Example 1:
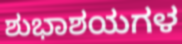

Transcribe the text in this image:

ಶುಭಾಶಯಗಳ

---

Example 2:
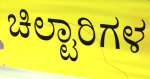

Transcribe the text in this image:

ಚಿಲ್ಟಾರಿಗಳ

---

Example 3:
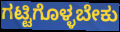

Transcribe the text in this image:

ಗಟ್ಟಿಗೊಳ್ಳಬೇಕು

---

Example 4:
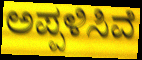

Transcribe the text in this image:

ಅಪ್ಪಳಿಸಿವೆ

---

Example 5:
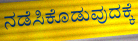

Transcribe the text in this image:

ನಡೆಸಿಕೊಡುವುದಕ್ಕೆ